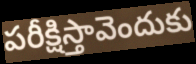
పరీక్షిస్తావెందుకు